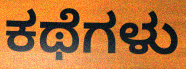
ಕಥೆಗಳು